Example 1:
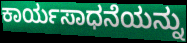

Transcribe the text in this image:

ಕಾರ್ಯಸಾಧನೆಯನ್ನು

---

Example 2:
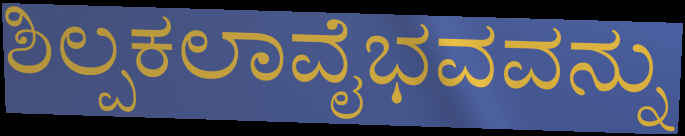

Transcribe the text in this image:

ಶಿಲ್ಪಕಲಾವೈಭವವನ್ನು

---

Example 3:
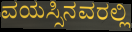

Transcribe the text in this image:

ವಯಸ್ಸಿನವರಲ್ಲಿ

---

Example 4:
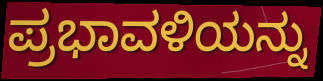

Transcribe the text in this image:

ಪ್ರಭಾವಳಿಯನ್ನು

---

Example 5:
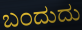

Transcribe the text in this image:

ಬಂದುದು